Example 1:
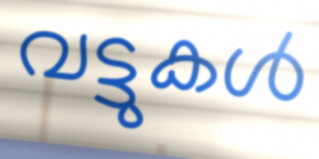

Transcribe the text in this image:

വട്ടുകൾ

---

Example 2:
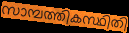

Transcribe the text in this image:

സാമ്പത്തികസ്ഥിതി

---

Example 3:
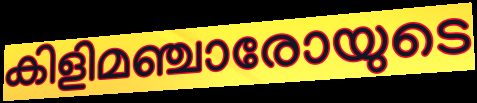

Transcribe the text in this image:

കിളിമഞ്ചാരോയുടെ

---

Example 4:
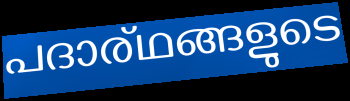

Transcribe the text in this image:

പദാര്ഥങ്ങളുടെ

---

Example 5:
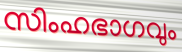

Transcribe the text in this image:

സിംഹഭാഗവും